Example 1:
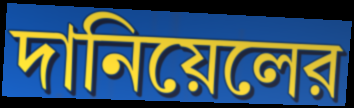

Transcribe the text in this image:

দানিয়েলের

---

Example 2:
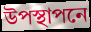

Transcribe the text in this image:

উপস্থাপনে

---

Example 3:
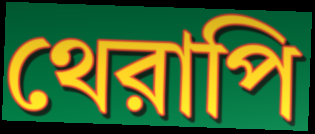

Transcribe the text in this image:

থেরাপি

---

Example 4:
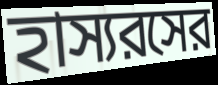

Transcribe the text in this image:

হাস্যরসের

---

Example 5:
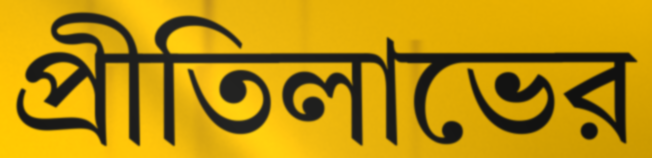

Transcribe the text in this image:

প্রীতিলাভের